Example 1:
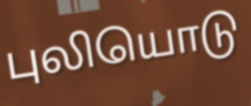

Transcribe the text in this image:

புலியொடு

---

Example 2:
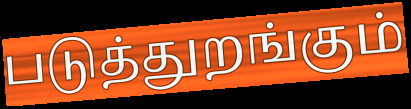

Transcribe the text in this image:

படுத்துறங்கும்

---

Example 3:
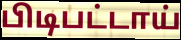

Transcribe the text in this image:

பிடிபட்டாய்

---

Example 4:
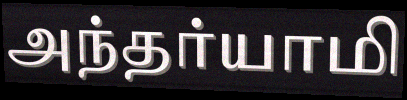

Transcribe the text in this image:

அந்தர்யாமி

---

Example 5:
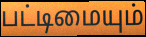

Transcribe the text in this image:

பட்டிமையும்